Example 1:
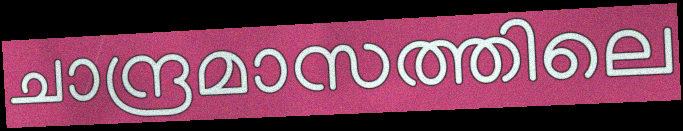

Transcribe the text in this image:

ചാന്ദ്രമാസത്തിലെ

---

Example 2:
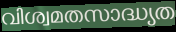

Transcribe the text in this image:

വിശ്വമതസാദ്ധ്യത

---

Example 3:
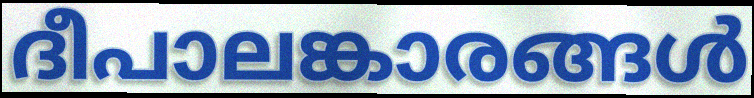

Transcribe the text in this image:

ദീപാലങ്കാരങ്ങൾ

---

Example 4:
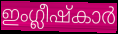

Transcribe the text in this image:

ഇംഗ്ലീഷ്കാർ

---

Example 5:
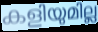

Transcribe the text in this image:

കളിയുമില്ല